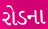
રોડના